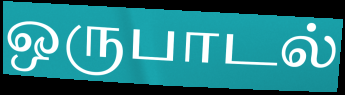
ஒருபாடல்